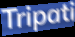
Tripati